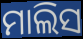
ମାଲିସ